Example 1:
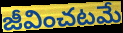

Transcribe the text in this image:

జీవించటమే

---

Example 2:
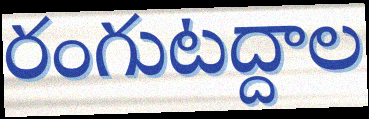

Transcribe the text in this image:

రంగుటద్దాల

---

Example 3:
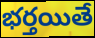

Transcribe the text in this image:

భర్తయితే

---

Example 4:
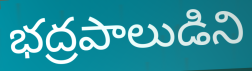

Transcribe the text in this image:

భద్రపాలుడిని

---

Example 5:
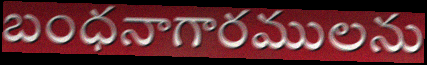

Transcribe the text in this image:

బంధనాగారములను